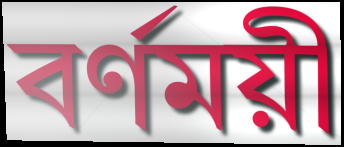
বর্ণময়ী